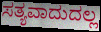
ಸತ್ಯವಾದುದಲ್ಲ